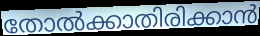
തോൽക്കാതിരിക്കാൻ